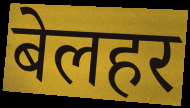
बेलहर